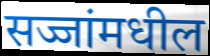
सज्जांमधील